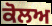
ਕੋਲਅ